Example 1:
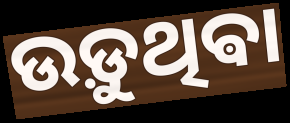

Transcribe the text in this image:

ଉଡ଼ୁଥିଵା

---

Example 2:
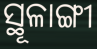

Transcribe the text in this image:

ସ୍ଥୂଳାଙ୍ଗୀ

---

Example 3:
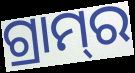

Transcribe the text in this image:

ଗ୍ରାମ୍‌ର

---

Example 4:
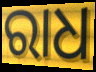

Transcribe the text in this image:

ରାଧ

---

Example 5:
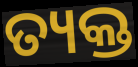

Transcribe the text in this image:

ତ୍ୟକ୍ତ